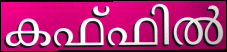
കഫ്ഫിൽ